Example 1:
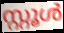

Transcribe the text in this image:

സ്റ്റൂൾ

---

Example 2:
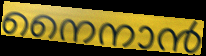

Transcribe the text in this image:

നൈനാൻ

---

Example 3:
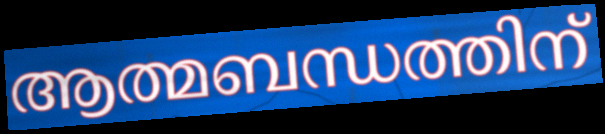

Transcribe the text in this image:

ആത്മബന്ധത്തിന്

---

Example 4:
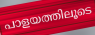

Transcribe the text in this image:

പാളയത്തിലൂടെ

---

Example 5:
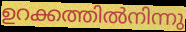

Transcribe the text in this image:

ഉറക്കത്തിൽനിന്നു